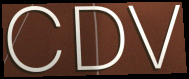
CDV